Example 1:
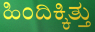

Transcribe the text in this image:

ಹಿಂದಿಕ್ಕಿತ್ತು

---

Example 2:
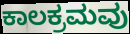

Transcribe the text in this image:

ಕಾಲಕ್ರಮವು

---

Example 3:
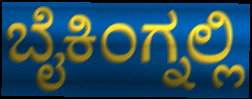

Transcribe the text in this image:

ಬೈಕಿಂಗ್ನಲ್ಲಿ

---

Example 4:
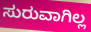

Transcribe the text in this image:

ಸುರುವಾಗಿಲ್ಲ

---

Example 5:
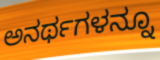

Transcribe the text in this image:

ಅನರ್ಥಗಳನ್ನೂ